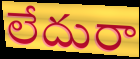
లేదురా